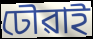
ঢৌৱাই